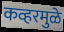
कव्हरमुळे